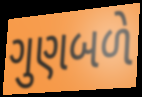
ગુણબળે